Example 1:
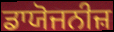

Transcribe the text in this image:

ਡਾਯੋਜਨੀਜ਼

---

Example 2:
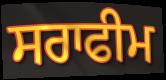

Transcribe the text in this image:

ਸਰਾਫੀਮ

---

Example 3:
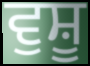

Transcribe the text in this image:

ਵੁਸ਼ੂ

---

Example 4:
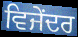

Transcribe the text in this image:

ਵਿਜੇਂਦਰ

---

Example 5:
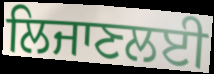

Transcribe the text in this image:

ਲਿਜਾਣਲਈ